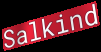
Salkind